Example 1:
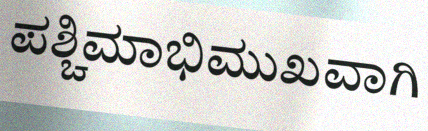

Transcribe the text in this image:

ಪಶ್ಚಿಮಾಭಿಮುಖವಾಗಿ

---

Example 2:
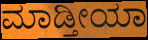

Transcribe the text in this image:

ಮಾಡ್ತೀಯಾ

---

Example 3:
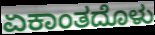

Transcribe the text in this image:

ಏಕಾಂತದೊಳು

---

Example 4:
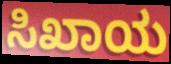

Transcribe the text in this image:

ಸಿಖಾಯ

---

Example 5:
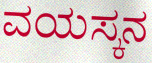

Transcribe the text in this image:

ವಯಸ್ಕನ